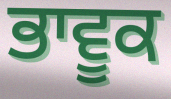
ਭਾਵੂਕ